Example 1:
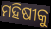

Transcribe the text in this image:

ମହିଷୀକୁ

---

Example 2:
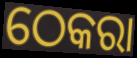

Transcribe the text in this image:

ଠେକରା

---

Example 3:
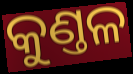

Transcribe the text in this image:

କୁଣ୍ତଳ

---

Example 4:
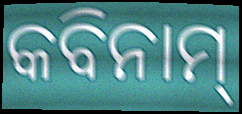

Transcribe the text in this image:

କବିନାମ୍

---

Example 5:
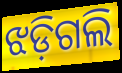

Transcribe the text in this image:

ଝଡ଼ିଗଲି